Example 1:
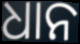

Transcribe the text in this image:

ଧାନ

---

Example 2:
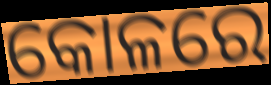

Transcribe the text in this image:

କୋଳରେ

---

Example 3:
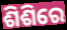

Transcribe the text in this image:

ଶିଶିରେ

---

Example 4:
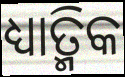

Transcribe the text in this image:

ଧ୍ୟାତ୍ମିକ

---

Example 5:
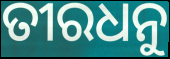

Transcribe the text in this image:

ତୀରଧନୁ